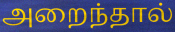
அறைந்தால்